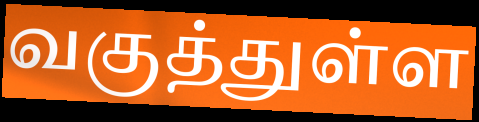
வகுத்துள்ள